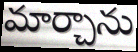
మార్చాను